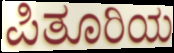
ಪಿತೂರಿಯ